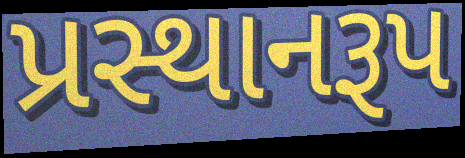
પ્રસ્થાનરૂપ